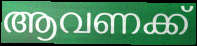
ആവണക്ക്